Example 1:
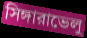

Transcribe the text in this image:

সিঙ্গারাভেলু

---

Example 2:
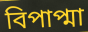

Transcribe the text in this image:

বিপাপ্মা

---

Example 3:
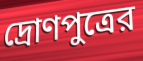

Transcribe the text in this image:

দ্রোণপুত্রের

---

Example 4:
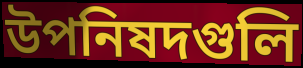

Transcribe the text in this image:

উপনিষদগুলি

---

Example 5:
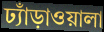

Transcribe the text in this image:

ঢ্যাঁড়াওয়ালা